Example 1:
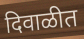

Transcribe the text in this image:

दिवाळीत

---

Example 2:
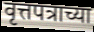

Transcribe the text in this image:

वृत्तपत्राच्या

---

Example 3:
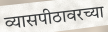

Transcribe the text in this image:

व्यासपीठावरच्या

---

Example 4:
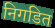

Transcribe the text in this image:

निगडित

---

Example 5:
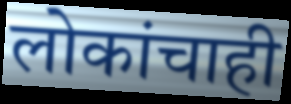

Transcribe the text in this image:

लोकांचाही